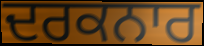
ਦਰਕਨਾਰ